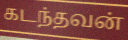
கடந்தவன்